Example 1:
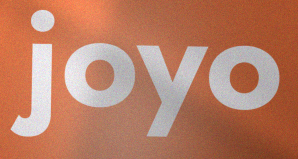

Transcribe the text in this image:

joyo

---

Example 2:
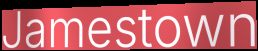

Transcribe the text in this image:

Jamestown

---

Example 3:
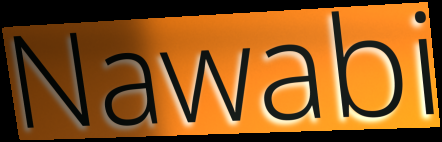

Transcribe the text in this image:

Nawabi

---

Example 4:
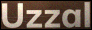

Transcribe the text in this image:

Uzzal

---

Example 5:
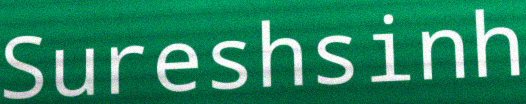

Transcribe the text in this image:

Sureshsinh